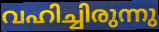
വഹിച്ചിരുന്നു